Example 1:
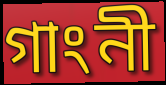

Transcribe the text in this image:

গাংনী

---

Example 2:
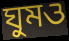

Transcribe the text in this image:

ঘুমও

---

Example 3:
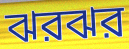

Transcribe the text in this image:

ঝরঝর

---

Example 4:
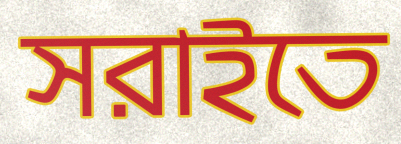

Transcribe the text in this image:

সরাইতে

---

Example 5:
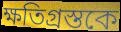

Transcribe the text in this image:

ক্ষতিগ্রস্তকে